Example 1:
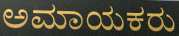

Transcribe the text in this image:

ಅಮಾಯಕರು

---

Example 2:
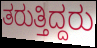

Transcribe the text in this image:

ತರುತ್ತಿದ್ದರು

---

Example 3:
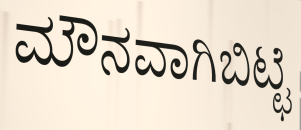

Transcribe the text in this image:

ಮೌನವಾಗಿಬಿಟ್ಟೆ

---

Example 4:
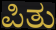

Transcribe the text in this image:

ಪಿತು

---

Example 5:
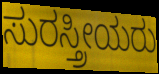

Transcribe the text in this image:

ಸುರಸ್ತ್ರೀಯರು